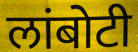
लांबोटी